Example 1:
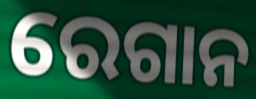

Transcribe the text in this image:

ରେଗାନ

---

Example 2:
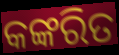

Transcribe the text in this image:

କଙ୍କରିତ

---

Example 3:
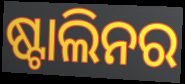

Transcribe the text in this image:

ଷ୍ଟାଲିନର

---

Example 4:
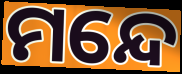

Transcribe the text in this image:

ମନ୍ଦେ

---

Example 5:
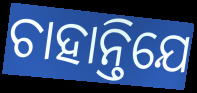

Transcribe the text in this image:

ଚାହାନ୍ତିଯେ